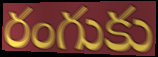
రంగుకు